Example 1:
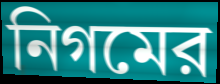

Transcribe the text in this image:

নিগমের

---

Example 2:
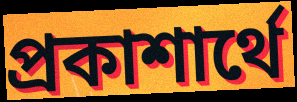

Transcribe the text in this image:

প্রকাশার্থে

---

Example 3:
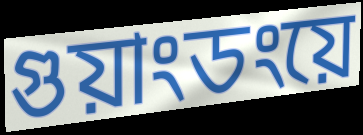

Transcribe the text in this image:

গুয়াংডংয়ে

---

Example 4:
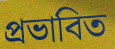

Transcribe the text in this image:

প্রভাবিত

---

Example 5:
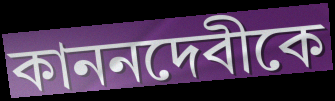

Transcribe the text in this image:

কাননদেবীকে